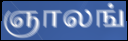
ஞாலங்